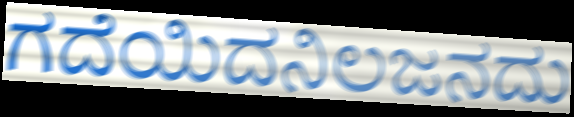
ಗದೆಯಿದನಿಲಜನದು